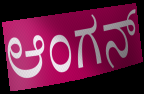
ಆಂಗನ್